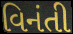
વિનંતી